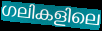
ഗലികളിലെ